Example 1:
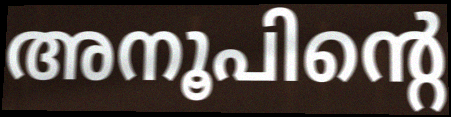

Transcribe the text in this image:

അനൂപിന്റെ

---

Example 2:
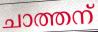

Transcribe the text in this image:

ചാത്തന്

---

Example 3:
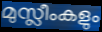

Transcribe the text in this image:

മുസ്ലീംകളും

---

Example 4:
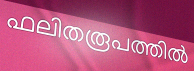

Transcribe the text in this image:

ഫലിതരൂപത്തിൽ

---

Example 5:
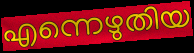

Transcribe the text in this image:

എന്നെഴുതിയ